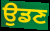
ਉਡਣ